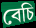
বেচি